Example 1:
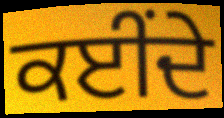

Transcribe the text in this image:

ਕਈਂਦੇ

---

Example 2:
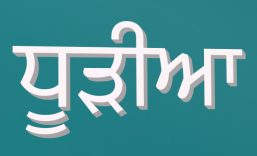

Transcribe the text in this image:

ਧੂੜੀਆ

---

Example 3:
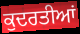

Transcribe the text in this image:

ਕੁਦਰਤੀਆਂ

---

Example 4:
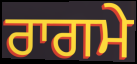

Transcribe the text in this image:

ਰਾਗਮੇ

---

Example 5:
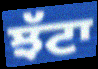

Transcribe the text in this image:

ਝੱਟਾ